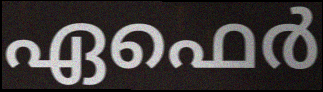
ഏഫെർ